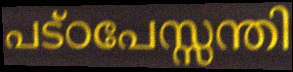
പട്ഠപേസ്സന്തി